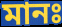
মানঃ